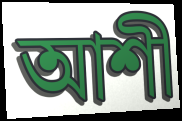
আশী